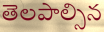
తెలపాల్సిన